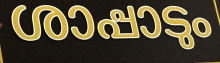
ശാപ്പാടും